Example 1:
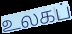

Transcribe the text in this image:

உலகப்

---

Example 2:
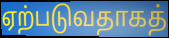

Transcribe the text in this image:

ஏற்படுவதாகத்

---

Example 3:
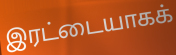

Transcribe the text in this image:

இரட்டையாகக்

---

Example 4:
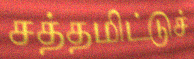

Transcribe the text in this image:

சத்தமிட்டுச்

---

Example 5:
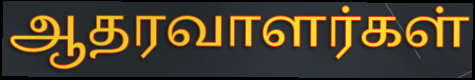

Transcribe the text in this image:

ஆதரவாளர்கள்